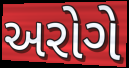
અરોગે